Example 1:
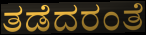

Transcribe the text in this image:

ತಡೆದರಂತೆ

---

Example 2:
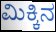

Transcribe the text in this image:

ಮಿಕ್ಕಿನ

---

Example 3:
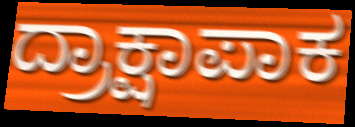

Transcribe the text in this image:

ದ್ರಾಕ್ಷಾಪಾಕ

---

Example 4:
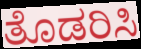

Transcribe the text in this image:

ತೊಡರಿಸಿ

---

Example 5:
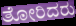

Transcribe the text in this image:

ತೋರಿದರು